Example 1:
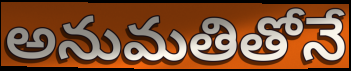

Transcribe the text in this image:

అనుమతితోనే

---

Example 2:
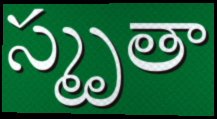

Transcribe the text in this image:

స్మృతా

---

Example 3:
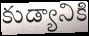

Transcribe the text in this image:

కుడ్యానికి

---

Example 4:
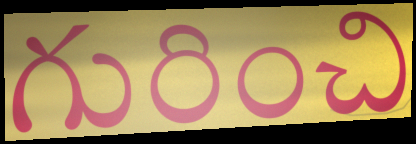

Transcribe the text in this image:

గురించి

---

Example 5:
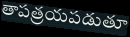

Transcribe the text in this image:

తాపత్రయపడుతూ